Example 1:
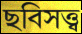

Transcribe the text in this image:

ছবিসত্ত্ব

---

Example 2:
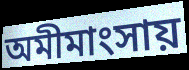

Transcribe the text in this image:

অমীমাংসায়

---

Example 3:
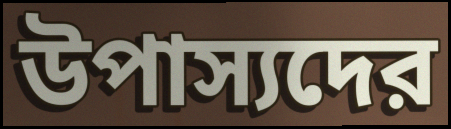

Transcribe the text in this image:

উপাস্যদের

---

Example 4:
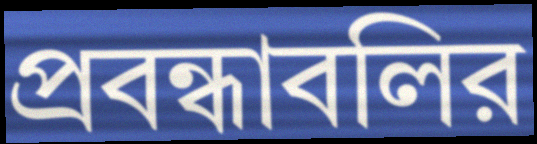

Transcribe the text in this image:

প্রবন্ধাবলির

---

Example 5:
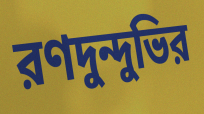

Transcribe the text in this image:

রণদুন্দুভির